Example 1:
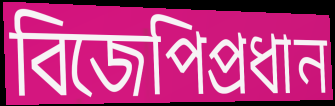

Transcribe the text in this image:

বিজেপিপ্রধান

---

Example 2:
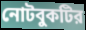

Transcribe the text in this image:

নোটবুকটির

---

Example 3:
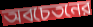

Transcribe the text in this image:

অবচেতনের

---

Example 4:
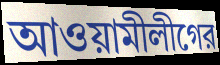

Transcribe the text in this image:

আওয়ামীলীগের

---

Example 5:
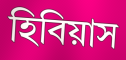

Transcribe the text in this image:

হিবিয়াস